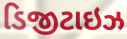
ડિજીટાઇઝ